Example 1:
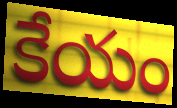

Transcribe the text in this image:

కేయం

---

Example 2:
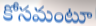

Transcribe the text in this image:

కోసమంటూ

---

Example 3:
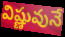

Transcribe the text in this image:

విష్ణువునే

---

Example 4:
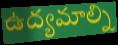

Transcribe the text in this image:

ఉద్యమాల్ని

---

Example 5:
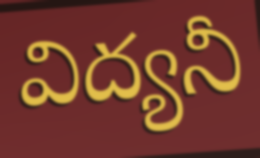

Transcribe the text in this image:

విద్యనీ